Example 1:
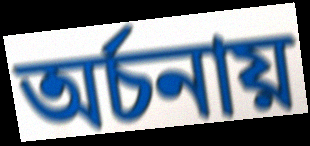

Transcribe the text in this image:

অর্চনায়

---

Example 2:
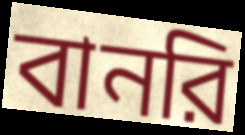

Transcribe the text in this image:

বানরি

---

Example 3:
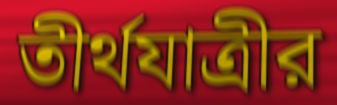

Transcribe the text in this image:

তীর্থযাত্রীর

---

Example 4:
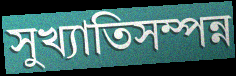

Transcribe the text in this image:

সুখ্যাতিসম্পন্ন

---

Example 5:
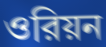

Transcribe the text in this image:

ওরিয়ন